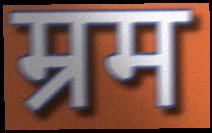
म्रम